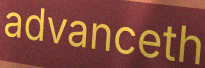
advanceth